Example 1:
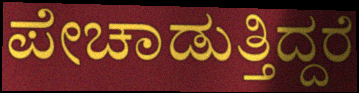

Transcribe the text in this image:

ಪೇಚಾಡುತ್ತಿದ್ದರೆ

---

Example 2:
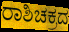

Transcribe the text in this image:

ರಾಶಿಚಕ್ರದ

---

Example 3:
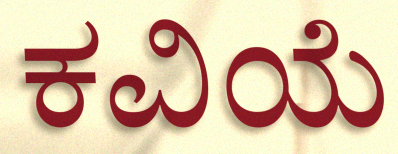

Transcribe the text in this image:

ಕವಿಯೆ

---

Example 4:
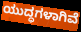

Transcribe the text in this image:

ಯುದ್ಧಗಳಾಗಿವೆ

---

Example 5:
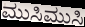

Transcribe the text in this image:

ಮುಸಿಮುಸಿ